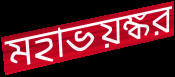
মহাভয়ঙ্কর